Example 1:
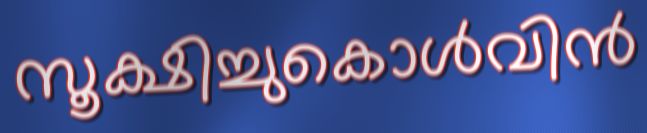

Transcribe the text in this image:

സൂക്ഷിച്ചുകൊൾവിൻ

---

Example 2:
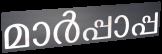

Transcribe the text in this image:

മാർപ്പാപ്പ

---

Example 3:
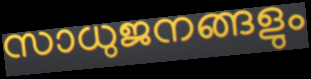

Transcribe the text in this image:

സാധുജനങ്ങളും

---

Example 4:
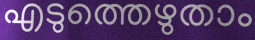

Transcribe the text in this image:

എടുത്തെഴുതാം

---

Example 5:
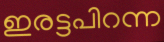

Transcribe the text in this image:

ഇരട്ടപിറന്ന